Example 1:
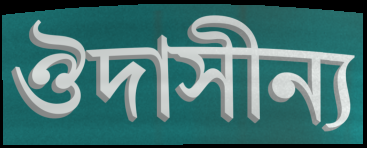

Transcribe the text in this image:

ঔদাসীন্য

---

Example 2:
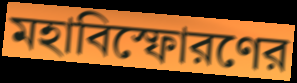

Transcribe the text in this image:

মহাবিস্ফোরণের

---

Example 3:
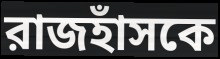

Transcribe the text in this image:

রাজহাঁসকে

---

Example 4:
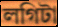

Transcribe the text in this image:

লগিটা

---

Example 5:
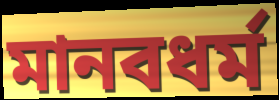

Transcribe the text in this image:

মানবধর্ম